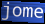
jome